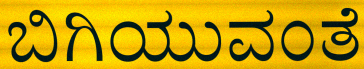
ಬಿಗಿಯುವಂತೆ